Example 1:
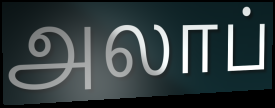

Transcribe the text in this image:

அலாப்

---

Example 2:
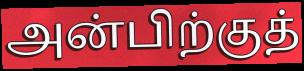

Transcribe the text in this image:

அன்பிற்குத்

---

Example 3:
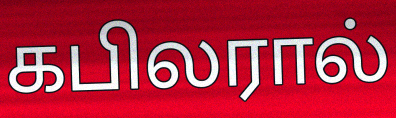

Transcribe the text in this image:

கபிலரால்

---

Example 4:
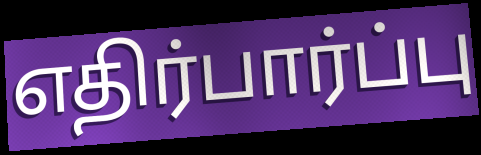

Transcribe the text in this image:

எதிர்பார்ப்பு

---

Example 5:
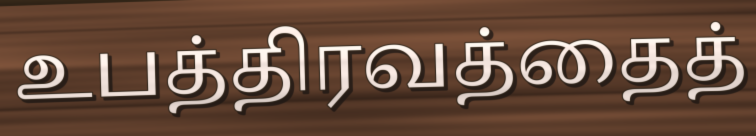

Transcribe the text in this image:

உபத்திரவத்தைத்